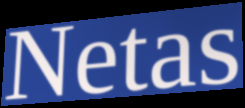
Netas